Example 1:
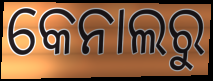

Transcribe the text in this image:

କେନାଲରୁ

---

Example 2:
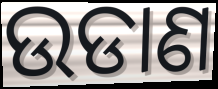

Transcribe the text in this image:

ଉଡାଣ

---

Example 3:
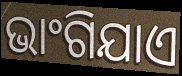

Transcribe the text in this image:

ଭାଂଗିଯାଏ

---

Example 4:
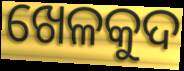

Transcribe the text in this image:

ଖେଳକୁଦ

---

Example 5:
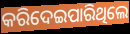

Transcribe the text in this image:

କରିଦେଇପାରିଥିଲେ